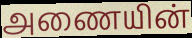
அணையின்